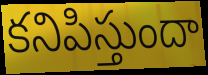
కనిపిస్తుందా